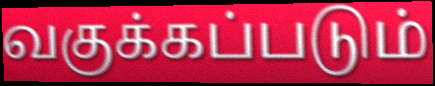
வகுக்கப்படும்